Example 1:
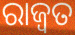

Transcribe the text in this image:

ରାଜ୍ୱତ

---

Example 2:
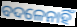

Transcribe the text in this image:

ବଦଳେନାହିଁ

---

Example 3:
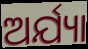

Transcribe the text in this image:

ଅର୍ଯ୍ୟା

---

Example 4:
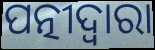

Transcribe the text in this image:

ପତ୍ନୀଦ୍ୱାରା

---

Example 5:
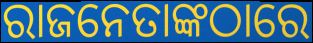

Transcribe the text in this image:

ରାଜନେତାଙ୍କଠାରେ